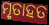
ମୃତାହତ